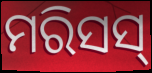
ମରିସସ୍